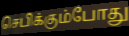
செபிக்கும்போது